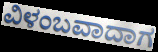
ವಿಳಂಬವಾದಾಗ